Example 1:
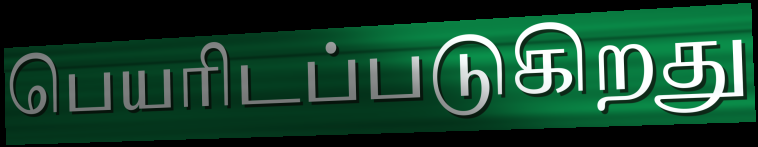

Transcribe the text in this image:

பெயரிடப்படுகிறது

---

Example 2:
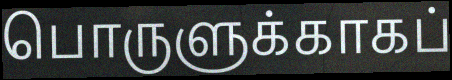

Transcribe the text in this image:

பொருளுக்காகப்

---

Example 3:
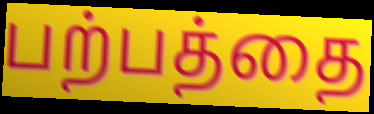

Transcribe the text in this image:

பற்பத்தை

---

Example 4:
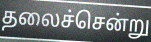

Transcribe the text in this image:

தலைச்சென்று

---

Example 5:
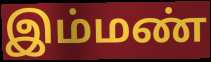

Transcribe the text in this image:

இம்மண்